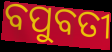
ବପୁବତୀ